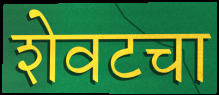
शेवटचा